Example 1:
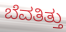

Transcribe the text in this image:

ಬೆವತಿತ್ತು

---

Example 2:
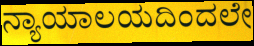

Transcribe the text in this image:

ನ್ಯಾಯಾಲಯದಿಂದಲೇ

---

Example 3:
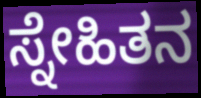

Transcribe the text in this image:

ಸ್ನೇಹಿತನ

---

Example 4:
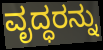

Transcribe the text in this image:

ವೃದ್ಧರನ್ನು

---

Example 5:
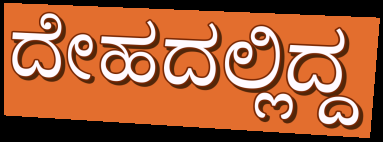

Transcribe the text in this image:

ದೇಹದಲ್ಲಿದ್ದ